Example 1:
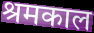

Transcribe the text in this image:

श्रमकाल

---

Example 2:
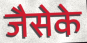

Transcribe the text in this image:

जैसेके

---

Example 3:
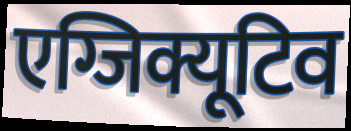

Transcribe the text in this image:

एग्जिक्यूटिव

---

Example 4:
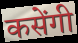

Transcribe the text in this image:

कसेंगी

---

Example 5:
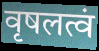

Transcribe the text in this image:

वृषलत्वं